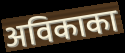
अविकाका